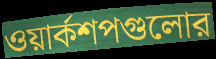
ওয়ার্কশপগুলোর